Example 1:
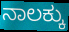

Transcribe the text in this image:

ನಾಲಕ್ಕು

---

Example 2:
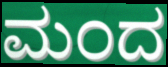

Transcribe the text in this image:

ಮಂದ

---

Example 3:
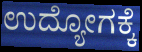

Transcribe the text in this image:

ಉದ್ಯೋಗಕ್ಕೆ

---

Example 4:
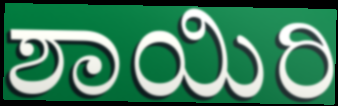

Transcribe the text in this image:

ಶಾಯಿರಿ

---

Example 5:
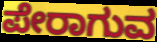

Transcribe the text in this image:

ಪೇರಾಗುವ